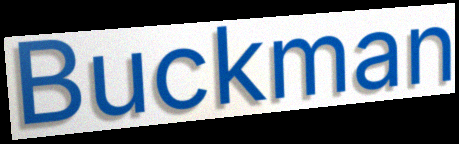
Buckman